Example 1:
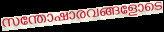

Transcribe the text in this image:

സന്തോഷാരവങ്ങളോടെ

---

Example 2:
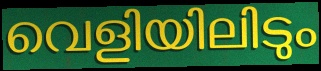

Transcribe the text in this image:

വെളിയിലിടും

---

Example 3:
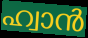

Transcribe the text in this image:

ഹ്വാൻ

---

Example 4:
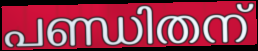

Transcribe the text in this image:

പണ്ഡിതന്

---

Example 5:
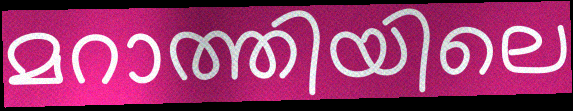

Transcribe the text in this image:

മറാത്തിയിലെ